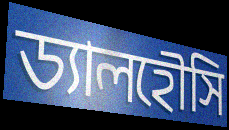
ড্যালহৌসি